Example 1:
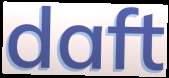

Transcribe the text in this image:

daft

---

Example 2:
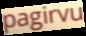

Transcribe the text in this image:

pagirvu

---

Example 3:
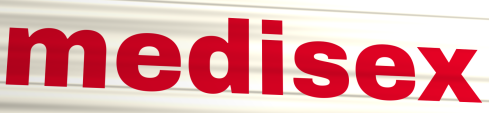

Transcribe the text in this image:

medisex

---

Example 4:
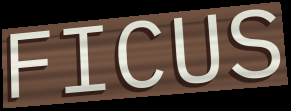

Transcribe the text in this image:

FICUS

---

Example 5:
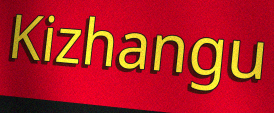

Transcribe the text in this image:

Kizhangu